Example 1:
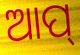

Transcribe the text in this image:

ଆପ୍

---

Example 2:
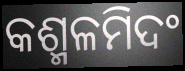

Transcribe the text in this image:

କଶ୍ମଳମିଦଂ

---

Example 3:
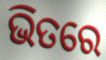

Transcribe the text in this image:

ଭିତରେ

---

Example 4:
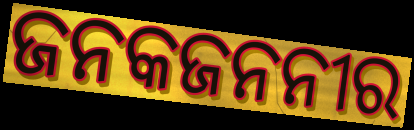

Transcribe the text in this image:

ଜନକଜନନୀର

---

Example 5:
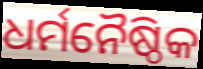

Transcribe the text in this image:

ଧର୍ମନୈଷ୍ଠିକ